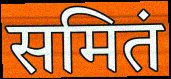
समितं